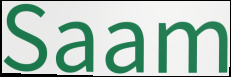
Saam